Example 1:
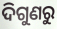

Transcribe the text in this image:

ଦିଗୁଣରୁ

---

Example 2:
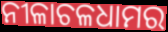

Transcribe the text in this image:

ନୀଳାଚଳଧାମର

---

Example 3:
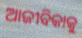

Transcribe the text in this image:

ଆଜୀବିକାକୁ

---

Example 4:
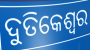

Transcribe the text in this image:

ଦୁତିକେଶ୍ୱର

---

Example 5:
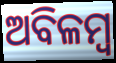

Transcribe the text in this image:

ଅବିଳମ୍ବ